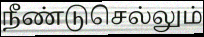
நீண்டுசெல்லும்